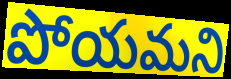
పోయమని